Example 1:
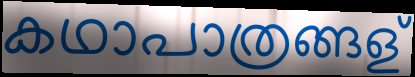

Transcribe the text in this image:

കഥാപാത്രങ്ങള്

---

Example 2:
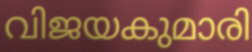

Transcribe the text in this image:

വിജയകുമാരി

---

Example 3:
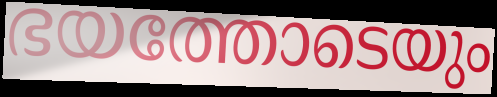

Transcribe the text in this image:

ഭയത്തോടെയും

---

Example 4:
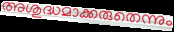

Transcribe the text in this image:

അശുദ്ധമാക്കരുതെന്നും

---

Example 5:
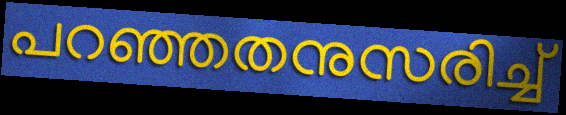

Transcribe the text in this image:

പറഞ്ഞതനുസരിച്ച്